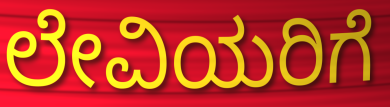
ಲೇವಿಯರಿಗೆ